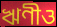
ঋণীও